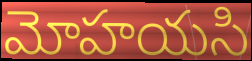
మోహయసి